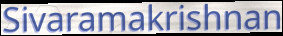
Sivaramakrishnan